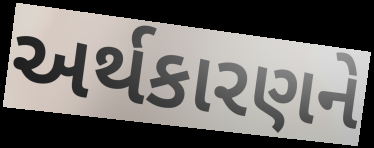
અર્થકારણને